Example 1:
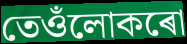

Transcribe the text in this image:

তেওঁলোকৰো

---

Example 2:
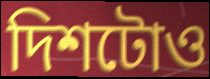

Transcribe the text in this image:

দিশটোও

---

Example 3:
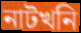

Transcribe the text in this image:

নাটখনি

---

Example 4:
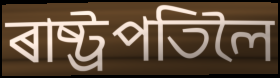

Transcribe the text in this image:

ৰাষ্ট্ৰপতিলৈ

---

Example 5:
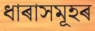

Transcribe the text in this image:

ধাৰাসমূহৰ